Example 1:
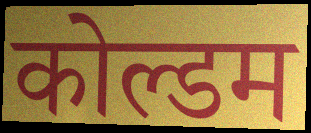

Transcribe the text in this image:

कोल्डम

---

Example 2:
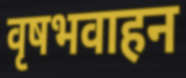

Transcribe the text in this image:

वृषभवाहन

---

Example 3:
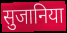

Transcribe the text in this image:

सुजानिया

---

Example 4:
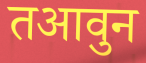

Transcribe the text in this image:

तआवुन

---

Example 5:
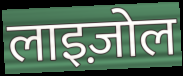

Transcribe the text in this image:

लाइज़ोल